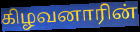
கிழவனாரின்